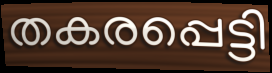
തകരപ്പെട്ടി